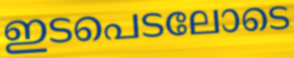
ഇടപെടലോടെ